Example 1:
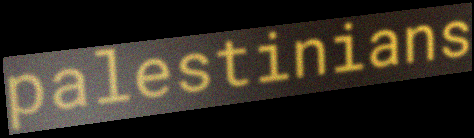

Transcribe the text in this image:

palestinians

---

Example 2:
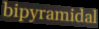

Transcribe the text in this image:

bipyramidal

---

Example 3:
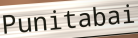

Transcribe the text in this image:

Punitabai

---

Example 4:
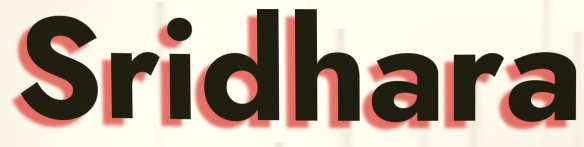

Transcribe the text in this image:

Sridhara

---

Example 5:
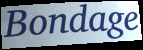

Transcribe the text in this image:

Bondage